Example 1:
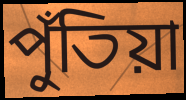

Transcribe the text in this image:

পুঁতিয়া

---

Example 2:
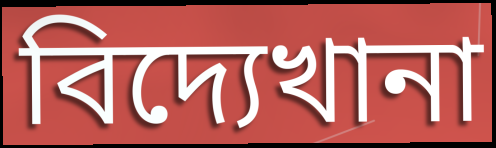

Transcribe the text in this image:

বিদ্যেখানা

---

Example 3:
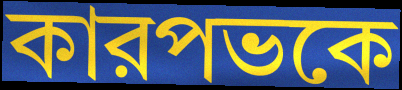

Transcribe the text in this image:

কারপভকে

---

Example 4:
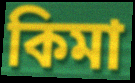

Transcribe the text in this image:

কিমা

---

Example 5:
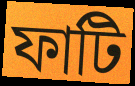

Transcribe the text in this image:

ফাটি